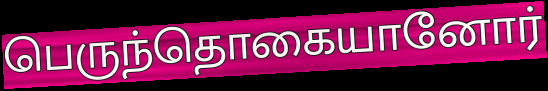
பெருந்தொகையானோர்